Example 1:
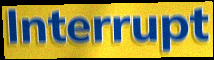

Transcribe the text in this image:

Interrupt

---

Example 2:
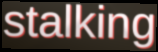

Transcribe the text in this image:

stalking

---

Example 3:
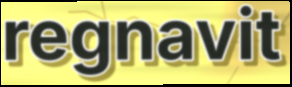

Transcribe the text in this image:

regnavit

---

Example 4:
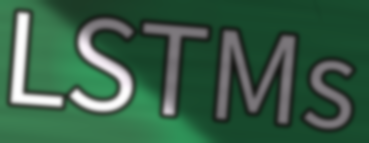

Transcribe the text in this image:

LSTMs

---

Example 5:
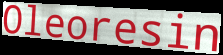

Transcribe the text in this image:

Oleoresin